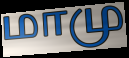
மாமு